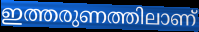
ഇത്തരുണത്തിലാണ്